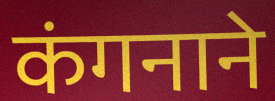
कंगनाने